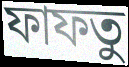
ফাফতু